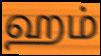
ஹம்